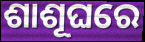
ଶାଶୂଘରେ